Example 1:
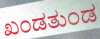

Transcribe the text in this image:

ಖಂಡತುಂಡ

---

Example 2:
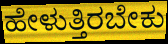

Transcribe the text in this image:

ಹೇಳುತ್ತಿರಬೇಕು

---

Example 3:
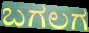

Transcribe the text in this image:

ಬಗಲಗ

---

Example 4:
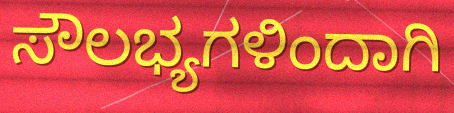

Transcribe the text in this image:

ಸೌಲಭ್ಯಗಳಿಂದಾಗಿ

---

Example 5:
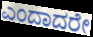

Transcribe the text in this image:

ಎಂದಾದರೇ